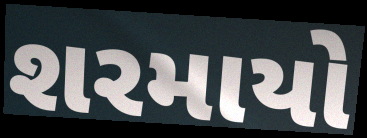
શરમાયો